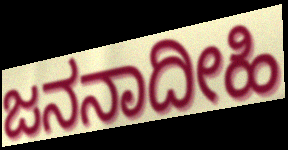
ಜನನಾದೀಹಿ